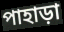
পাহাড়া